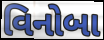
વિનોબા